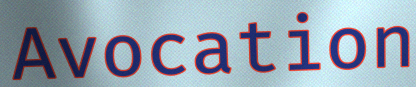
Avocation